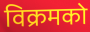
विक्रमको